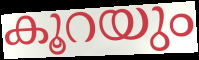
കൂറയും